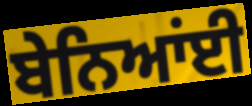
ਬੇਨਿਆਂਈ